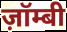
ज़ॉम्बी